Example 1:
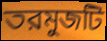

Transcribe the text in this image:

তরমুজটি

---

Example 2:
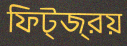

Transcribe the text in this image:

ফিট্‌জ্‌রয়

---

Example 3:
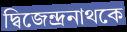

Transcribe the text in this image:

দ্বিজেন্দ্রনাথকে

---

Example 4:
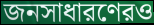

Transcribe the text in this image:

জনসাধারণেরও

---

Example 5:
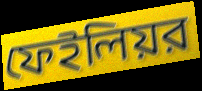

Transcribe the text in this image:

ফেইলিয়র